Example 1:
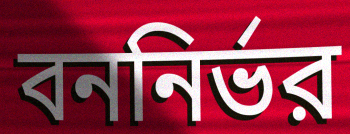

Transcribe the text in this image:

বননির্ভর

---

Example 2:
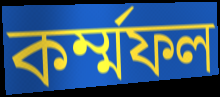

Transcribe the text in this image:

কর্ম্মফল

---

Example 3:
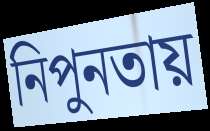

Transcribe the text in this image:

নিপুনতায়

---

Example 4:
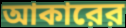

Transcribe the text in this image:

আকারের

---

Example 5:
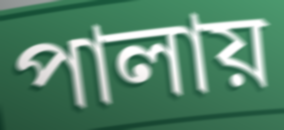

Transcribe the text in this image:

পালায়